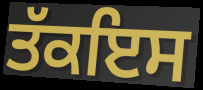
ਤੱਕਇਸ